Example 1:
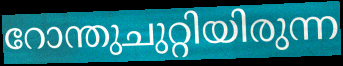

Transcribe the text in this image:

റോന്തുചുറ്റിയിരുന്ന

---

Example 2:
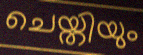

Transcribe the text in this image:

ചെയ്തിയും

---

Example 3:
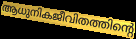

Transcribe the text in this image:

ആധുനികജീവിതത്തിന്റെ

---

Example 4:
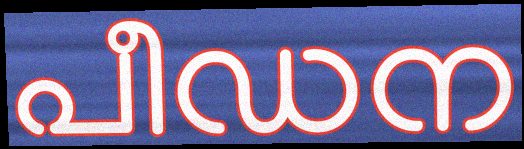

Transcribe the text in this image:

പീഡന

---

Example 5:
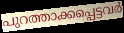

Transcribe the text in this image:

പുറത്താക്കപ്പെട്ടവർ